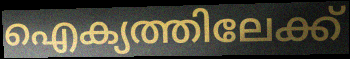
ഐക്യത്തിലേക്ക്